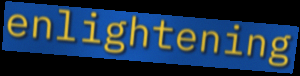
enlightening